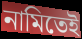
নামিতেই